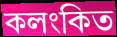
কলংকিত